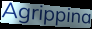
Agrippina